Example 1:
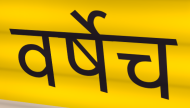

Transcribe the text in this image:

वर्षेच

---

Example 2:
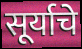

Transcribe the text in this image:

सूर्याचे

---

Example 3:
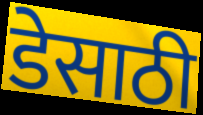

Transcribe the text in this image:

डेसाठी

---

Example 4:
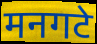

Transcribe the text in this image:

मनगटे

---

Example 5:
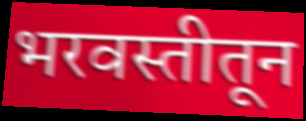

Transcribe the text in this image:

भरवस्तीतून